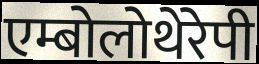
एम्बोलोथेरेपी